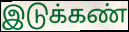
இடுக்கண்